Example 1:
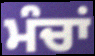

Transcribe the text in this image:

ਮੰਚਾਂ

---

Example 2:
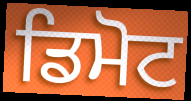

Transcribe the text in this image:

ਡਿਮੋਟ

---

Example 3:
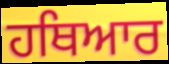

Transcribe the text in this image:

ਹਥਿਆਰ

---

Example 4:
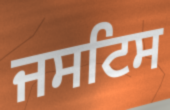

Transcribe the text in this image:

ਜਸਟਿਸ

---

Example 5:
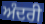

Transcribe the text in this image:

ਅੰਦਰੀ